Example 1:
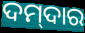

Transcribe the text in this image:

ଦମ୍‌ଦାର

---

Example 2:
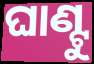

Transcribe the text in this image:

ଘାଣ୍ଟୁ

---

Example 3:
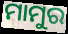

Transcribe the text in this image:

ମାମୁର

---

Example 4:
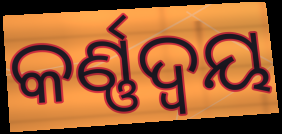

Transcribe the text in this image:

କର୍ଣ୍ଣଦ୍ୱୟ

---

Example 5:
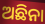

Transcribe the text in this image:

ଅଛିନା